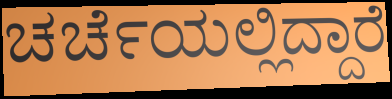
ಚರ್ಚೆಯಲ್ಲಿದ್ದಾರೆ